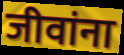
जीवांना